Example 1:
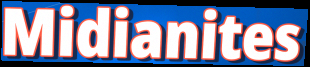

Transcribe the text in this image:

Midianites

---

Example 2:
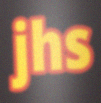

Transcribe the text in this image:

jhs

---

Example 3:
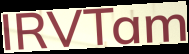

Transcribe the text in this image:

IRVTam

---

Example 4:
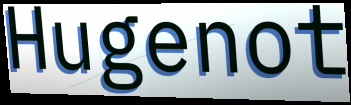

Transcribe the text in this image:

Hugenot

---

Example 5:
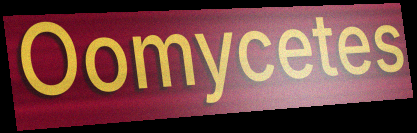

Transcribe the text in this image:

Oomycetes